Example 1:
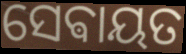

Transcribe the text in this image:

ସେଵାୟତ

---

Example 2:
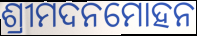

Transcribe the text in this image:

ଶ୍ରୀମଦନମୋହନ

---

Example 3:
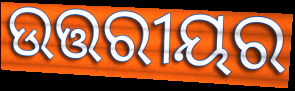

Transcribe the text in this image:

ଉତ୍ତରୀୟର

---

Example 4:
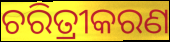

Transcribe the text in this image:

ଚରିତ୍ରୀକରଣ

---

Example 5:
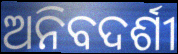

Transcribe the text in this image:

ଅନିବଦର୍ଶୀ